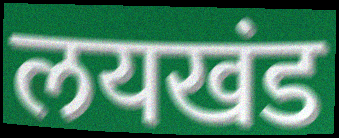
लयखंड